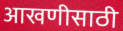
आखणीसाठी